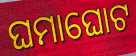
ଘମାଘୋଟ